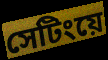
সেটিংয়ে